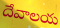
దేవాలయ